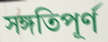
সঙ্গতিপূর্ণ